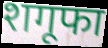
शगूफा